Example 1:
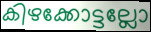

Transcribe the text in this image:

കിഴക്കോട്ടല്ലോ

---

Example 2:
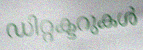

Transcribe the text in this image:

ഡിറ്റക്ടറുകൾ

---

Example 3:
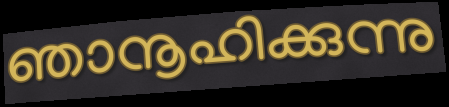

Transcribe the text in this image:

ഞാനൂഹിക്കുന്നു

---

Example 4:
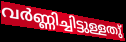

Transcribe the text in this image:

വർണ്ണിച്ചിട്ടുള്ളതു്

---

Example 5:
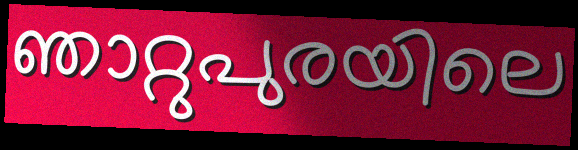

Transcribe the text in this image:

ഞാറ്റുപുരയിലെ